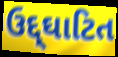
ઉદ્દ્ઘાટિત